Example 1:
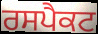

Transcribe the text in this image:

ਰਸਪੈਕਟ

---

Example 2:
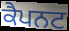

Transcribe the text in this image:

ਕੈਪਨਟ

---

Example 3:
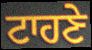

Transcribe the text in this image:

ਟਾਹਣੇ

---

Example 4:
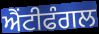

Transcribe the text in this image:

ਐਂਟੀਫੰਗਲ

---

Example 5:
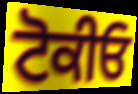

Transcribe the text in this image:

ਟੋਕੀਓ